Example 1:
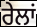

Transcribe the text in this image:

ਰੇਲਾਂ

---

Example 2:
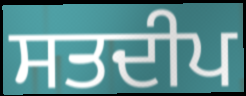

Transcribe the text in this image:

ਸਤਦੀਪ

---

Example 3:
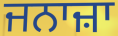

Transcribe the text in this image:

ਜਨਾਜ਼ਾ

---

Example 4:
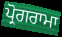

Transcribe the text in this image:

ਪ੍ਰੋਗਰਾਮਾ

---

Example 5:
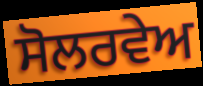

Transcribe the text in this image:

ਸੋਲਰਵੇਅ